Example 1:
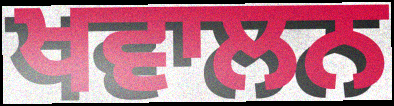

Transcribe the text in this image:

ਖਵਾਲਨ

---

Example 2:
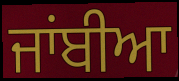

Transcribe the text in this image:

ਜਾਂਬੀਆ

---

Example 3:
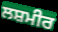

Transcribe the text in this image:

ਲਸ਼ਮੀਰ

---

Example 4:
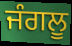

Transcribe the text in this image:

ਜੰਗਲੂ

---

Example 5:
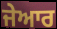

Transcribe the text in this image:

ਜੇਆਰ